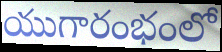
యుగారంభంలో